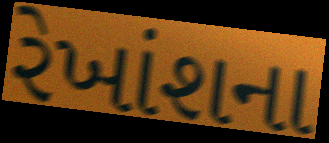
રેખાંશના